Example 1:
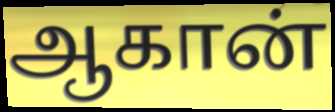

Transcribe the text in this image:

ஆகான்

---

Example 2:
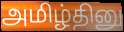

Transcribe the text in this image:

அமிழ்தினு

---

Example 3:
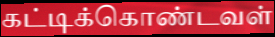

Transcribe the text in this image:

கட்டிக்கொண்டவள்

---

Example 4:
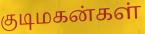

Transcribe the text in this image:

குடிமகன்கள்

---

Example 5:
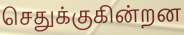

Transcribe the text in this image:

செதுக்குகின்றன